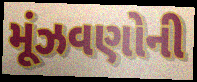
મૂંઝવણોની